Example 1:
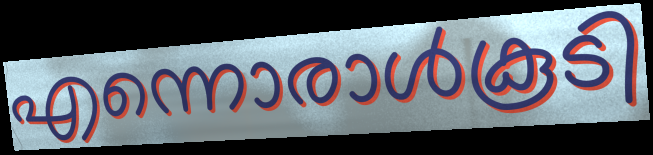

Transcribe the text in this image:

എന്നൊരാൾകൂടി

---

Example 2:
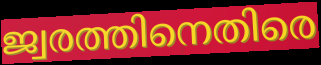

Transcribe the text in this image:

ജ്വരത്തിനെതിരെ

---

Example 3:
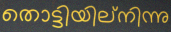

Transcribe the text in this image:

തൊട്ടിയില്നിന്നു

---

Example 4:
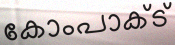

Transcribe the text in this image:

കോംപാക്ട്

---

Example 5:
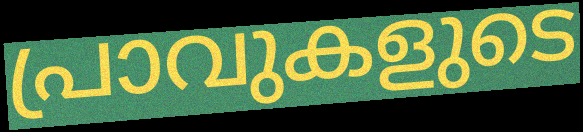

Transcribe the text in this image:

പ്രാവുകളുടെ